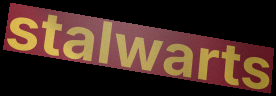
stalwarts